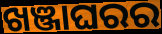
ଖଞ୍ଜାଘରର